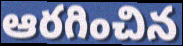
ఆరగించిన